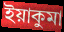
ইয়াকুমা